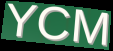
YCM